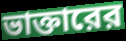
ভাক্তারের